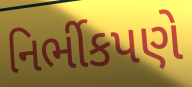
નિર્ભીકપણે